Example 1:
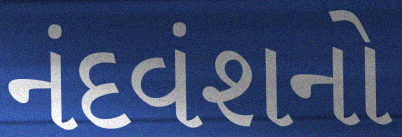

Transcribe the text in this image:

નંદવંશનો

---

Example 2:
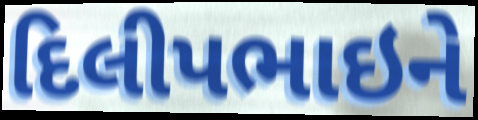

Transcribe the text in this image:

દિલીપભાઇને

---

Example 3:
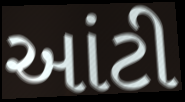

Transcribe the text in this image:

આંટી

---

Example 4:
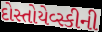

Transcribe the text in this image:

દોસ્તોયેવ્સ્કીની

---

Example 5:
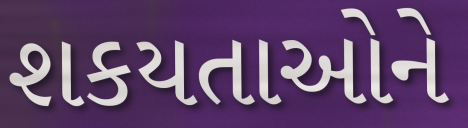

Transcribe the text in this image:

શકયતાઓને